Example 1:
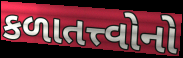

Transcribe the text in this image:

કળાતત્ત્વોનો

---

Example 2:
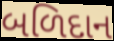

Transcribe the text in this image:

બળિદાન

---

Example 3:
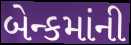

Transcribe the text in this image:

બેન્કમાંની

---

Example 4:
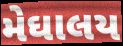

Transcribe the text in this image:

મેઘાલય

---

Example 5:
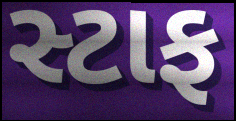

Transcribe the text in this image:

સ્ટાફ